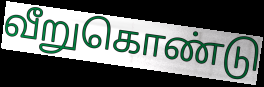
வீறுகொண்டு